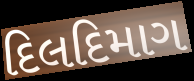
દિલદિમાગ